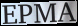
EPMA